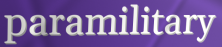
paramilitary